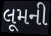
લૂમની